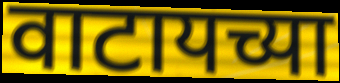
वाटायच्या